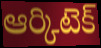
ఆర్కిటెక్